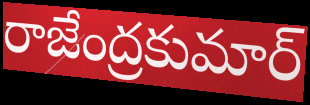
రాజేంద్రకుమార్